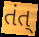
તંત્